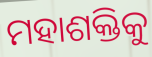
ମହାଶକ୍ତିକୁ